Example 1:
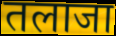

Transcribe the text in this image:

तलाजा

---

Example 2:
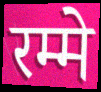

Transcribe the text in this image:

रम्मे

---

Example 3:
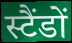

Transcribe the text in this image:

स्टैंडों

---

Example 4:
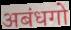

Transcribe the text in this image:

अबंधगो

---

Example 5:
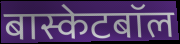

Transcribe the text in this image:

बास्‍केटबॉल